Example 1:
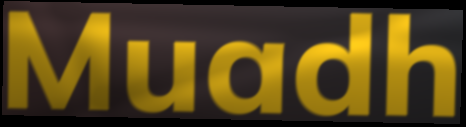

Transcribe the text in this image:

Muadh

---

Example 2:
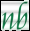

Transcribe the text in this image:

nb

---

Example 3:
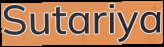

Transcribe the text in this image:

Sutariya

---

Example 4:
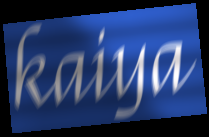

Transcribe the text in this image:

kaiya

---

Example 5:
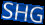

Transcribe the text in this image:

SHG